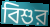
বিশুর